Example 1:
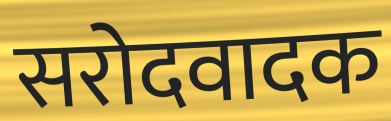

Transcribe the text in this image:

सरोदवादक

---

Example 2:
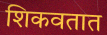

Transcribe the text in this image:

शिकवतात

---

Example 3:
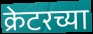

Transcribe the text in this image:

क्रेटरच्या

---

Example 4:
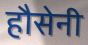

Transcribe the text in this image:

हौसेनी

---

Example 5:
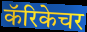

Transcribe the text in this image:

कॅरिकेचर